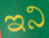
ఇని